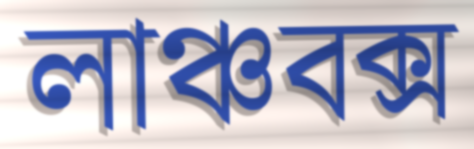
লাঞ্চবক্স